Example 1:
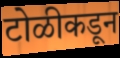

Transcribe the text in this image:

टोळीकडून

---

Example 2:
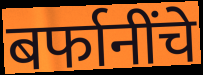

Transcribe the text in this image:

बर्फानींचे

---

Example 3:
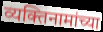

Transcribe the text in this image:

व्यक्तिनामांच्या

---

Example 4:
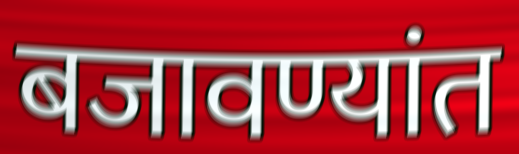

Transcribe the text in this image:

बजावण्यांत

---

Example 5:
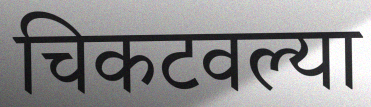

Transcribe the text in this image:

चिकटवल्या